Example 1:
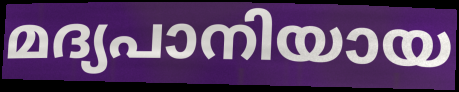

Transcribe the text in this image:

മദ്യപാനിയായ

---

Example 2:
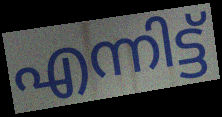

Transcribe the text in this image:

എന്നിട്ട്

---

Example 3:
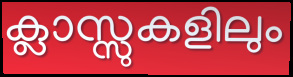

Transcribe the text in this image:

ക്ലാസ്സുകളിലും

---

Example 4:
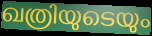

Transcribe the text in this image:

ഖത്രിയുടെയും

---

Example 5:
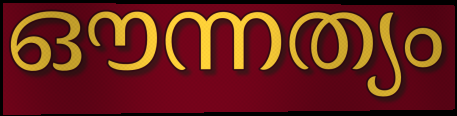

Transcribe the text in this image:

ഔന്നത്യം